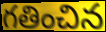
గతించిన